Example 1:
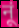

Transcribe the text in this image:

नूं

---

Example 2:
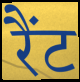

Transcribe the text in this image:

रैंट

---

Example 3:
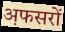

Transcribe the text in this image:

अ़फसरों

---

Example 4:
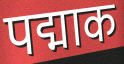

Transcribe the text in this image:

पद्माक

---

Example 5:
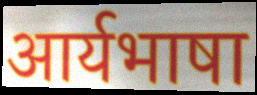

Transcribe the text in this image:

आर्यभाषा